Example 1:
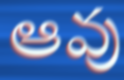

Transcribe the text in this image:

ఆవు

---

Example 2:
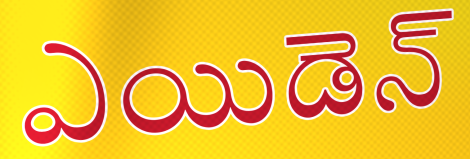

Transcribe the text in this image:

ఎయిడెన్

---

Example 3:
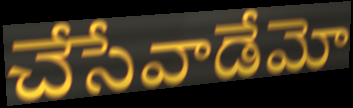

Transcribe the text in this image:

చేసేవాడేమో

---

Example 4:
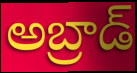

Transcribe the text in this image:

అబ్రాడ్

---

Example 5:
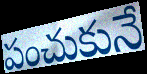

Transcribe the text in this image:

పంచుకునే